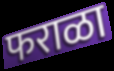
फराळा